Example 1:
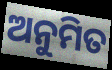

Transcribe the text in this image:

ଅନୁମିତ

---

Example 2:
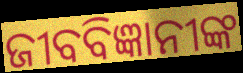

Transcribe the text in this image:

ଜୀବବିଜ୍ଞାନୀଙ୍କ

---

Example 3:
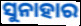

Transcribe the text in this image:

ସୁନାହାର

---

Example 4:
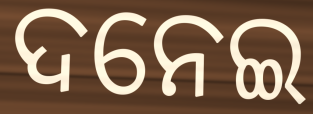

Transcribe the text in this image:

ଦନେଇ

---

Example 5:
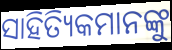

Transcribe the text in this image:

ସାହିତ୍ୟିକମାନଙ୍କୁ